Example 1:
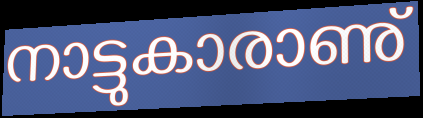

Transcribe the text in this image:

നാട്ടുകാരാണു്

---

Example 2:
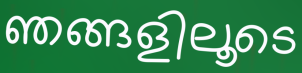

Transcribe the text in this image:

ഞങ്ങളിലൂടെ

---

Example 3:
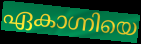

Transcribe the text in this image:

ഏകാഗ്നിയെ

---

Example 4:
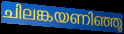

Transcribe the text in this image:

ചിലങ്കയണിഞ്ഞു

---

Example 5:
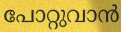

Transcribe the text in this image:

പോറ്റുവാൻ